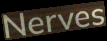
Nerves